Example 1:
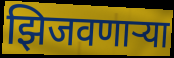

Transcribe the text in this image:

झिजवणाऱ्या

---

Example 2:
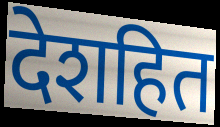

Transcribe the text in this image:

देशहित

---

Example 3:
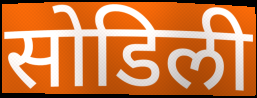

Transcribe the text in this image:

सोडिली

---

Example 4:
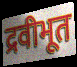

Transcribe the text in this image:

द्रवीभूत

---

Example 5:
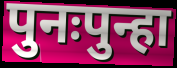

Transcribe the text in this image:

पुनःपुन्हा